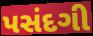
પસંદગી